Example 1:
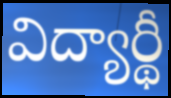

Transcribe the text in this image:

విద్యార్థీ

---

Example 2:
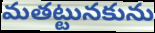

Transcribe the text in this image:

మతట్టునకును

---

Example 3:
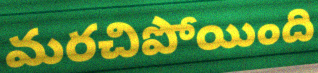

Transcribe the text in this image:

మరచిపోయింది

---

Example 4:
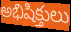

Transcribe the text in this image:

అభిషిక్తులు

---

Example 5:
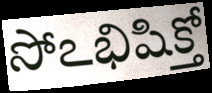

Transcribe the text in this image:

సోఽభిషిక్తో